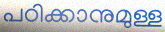
പഠിക്കാനുമുള്ള